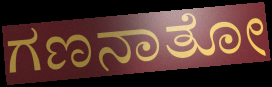
ಗಣನಾತೋ